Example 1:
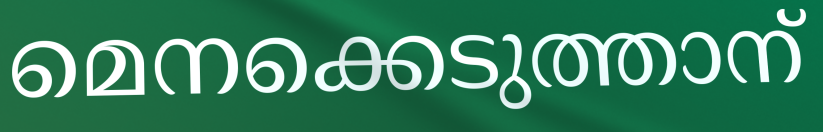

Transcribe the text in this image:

മെനക്കെടുത്താന്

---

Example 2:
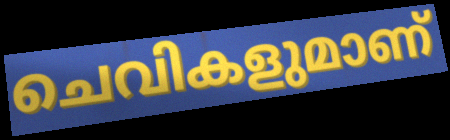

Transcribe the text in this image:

ചെവികളുമാണ്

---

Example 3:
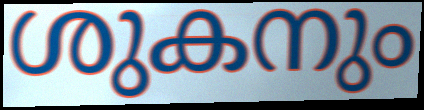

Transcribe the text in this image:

ശുകനും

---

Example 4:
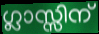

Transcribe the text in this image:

ഗ്ലാസ്സിന്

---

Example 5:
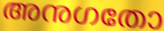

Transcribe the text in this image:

അനുഗതോ